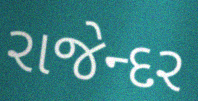
રાજેન્દર